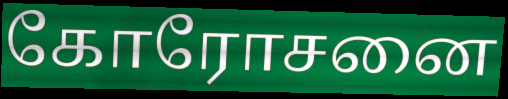
கோரோசனை